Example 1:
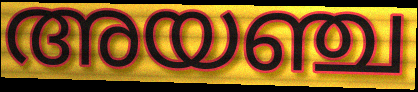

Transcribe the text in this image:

അയഞ്ച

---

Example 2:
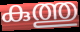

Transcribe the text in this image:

കുത്തു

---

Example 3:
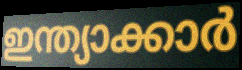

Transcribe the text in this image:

ഇന്ത്യാക്കാർ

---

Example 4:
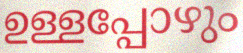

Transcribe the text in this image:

ഉള്ളപ്പോഴും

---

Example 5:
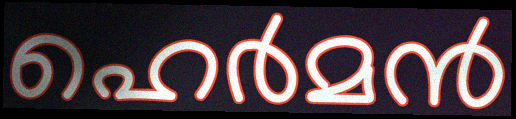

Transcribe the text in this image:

ഹെർമൻ